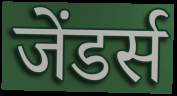
जेंडर्स